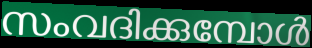
സംവദിക്കുമ്പോൾ